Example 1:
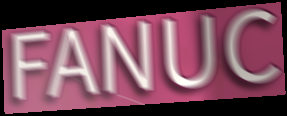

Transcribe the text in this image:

FANUC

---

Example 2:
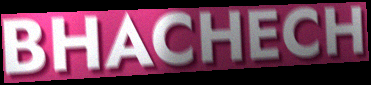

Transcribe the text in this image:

BHACHECH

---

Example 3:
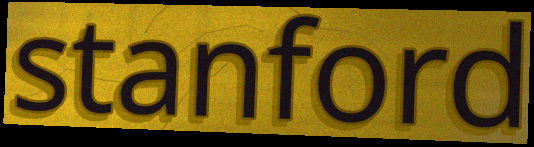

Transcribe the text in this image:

stanford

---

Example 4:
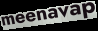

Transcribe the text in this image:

meenavap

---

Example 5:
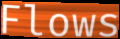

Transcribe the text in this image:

Flows